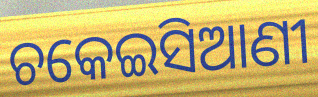
ଚକେଇସିଆଣୀ